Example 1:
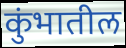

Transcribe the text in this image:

कुंभातील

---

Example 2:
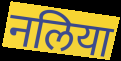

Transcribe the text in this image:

नलिया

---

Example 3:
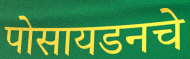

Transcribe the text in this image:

पोसायडनचे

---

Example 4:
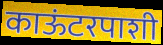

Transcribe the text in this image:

काऊंटरपाशी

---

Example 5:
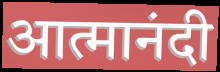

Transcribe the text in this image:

आत्मानंदी